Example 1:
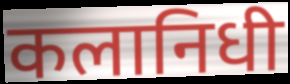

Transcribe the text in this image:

कलानिधी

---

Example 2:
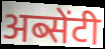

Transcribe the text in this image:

अब्सेंटी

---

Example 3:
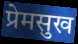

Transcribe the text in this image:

प्रेमसुख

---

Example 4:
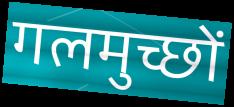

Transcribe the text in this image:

गलमुच्छों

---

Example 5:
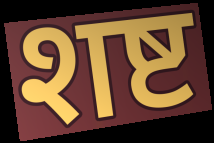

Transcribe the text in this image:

शष्ट